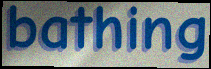
bathing